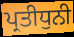
ਪ੍ਰਤੀਧੁਨੀ